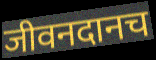
जीवनदानच